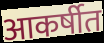
आकर्षीत